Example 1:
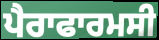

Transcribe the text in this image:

ਪੈਰਾਫਾਰਮਸੀ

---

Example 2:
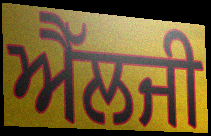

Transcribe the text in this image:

ਐੱਲਜੀ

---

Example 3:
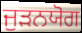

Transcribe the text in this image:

ਜੁੜਨਯੋਗ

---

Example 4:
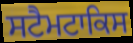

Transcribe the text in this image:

ਸਟੈਮਟਾਕਿਸ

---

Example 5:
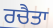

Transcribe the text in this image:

ਰਚੈਤਾ